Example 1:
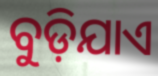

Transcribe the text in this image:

ବୁଡ଼ିଯାଏ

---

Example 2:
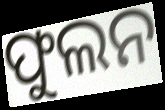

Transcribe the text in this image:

ଫୁଲନ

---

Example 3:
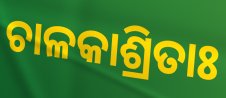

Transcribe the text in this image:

ଚାଳକାଶ୍ରିତାଃ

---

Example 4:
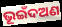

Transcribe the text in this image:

ଭୂଇଁଦଅଣ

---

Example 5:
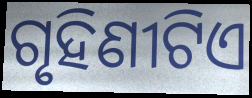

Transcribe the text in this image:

ଗୃହିଣୀଟିଏ